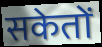
सकेतों